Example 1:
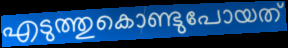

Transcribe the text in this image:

എടുത്തുകൊണ്ടുപോയത്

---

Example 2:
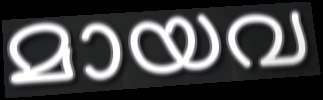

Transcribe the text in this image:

മായവ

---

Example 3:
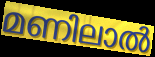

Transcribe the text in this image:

മണിലാൽ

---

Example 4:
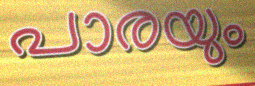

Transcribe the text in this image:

പാരയും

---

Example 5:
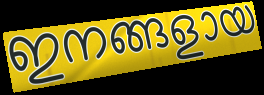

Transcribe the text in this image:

ഇനങ്ങളായ